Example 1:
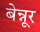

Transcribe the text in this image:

बेन्नूर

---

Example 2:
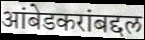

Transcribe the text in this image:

आंबेडकरांबद्दल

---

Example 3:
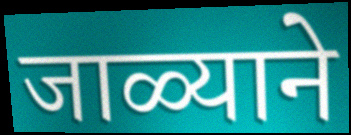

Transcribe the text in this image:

जाळ्याने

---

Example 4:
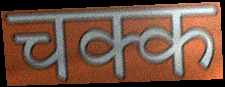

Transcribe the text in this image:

चक्क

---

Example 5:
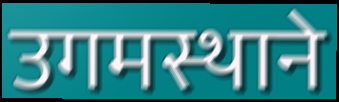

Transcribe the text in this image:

उगमस्थाने